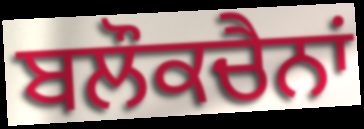
ਬਲੌਕਚੈਨਾਂ